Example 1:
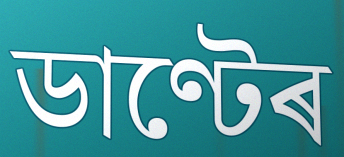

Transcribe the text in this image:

ডাণ্টেৰ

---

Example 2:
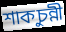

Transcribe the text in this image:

শাকচুন্নী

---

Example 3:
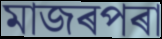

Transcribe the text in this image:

মাজৰপৰা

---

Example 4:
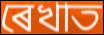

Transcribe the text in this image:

ৰেখাত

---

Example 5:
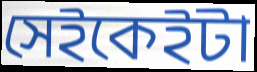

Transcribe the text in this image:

সেইকেইটা